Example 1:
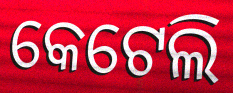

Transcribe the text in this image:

କେଟେଲି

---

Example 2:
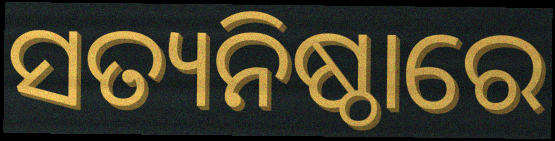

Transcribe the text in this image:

ସତ୍ୟନିଷ୍ଠାରେ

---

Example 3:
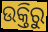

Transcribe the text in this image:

ଉକ୍ତିରୁ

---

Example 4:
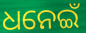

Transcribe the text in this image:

ଧନେଇଁ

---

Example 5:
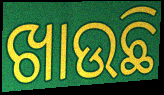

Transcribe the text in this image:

ଖାଉଛି